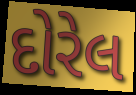
દોરેલ